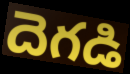
దెగడి